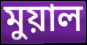
মুয়াল